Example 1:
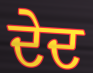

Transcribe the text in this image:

ਦੇਦ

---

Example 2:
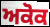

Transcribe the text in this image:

ਅਕੋਕ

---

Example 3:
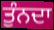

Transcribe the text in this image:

ਤੁੰਨਦਾ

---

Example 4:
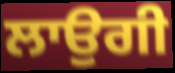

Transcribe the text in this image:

ਲਾਉਗੀ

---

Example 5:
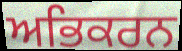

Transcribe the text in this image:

ਅਭਿਕਰਨ